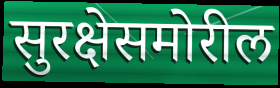
सुरक्षेसमोरील